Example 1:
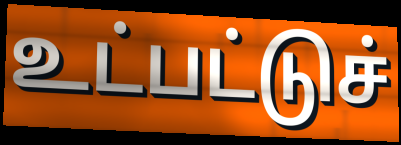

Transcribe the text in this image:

உட்பட்டுச்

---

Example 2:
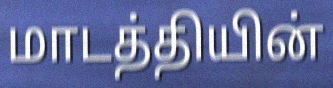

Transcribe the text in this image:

மாடத்தியின்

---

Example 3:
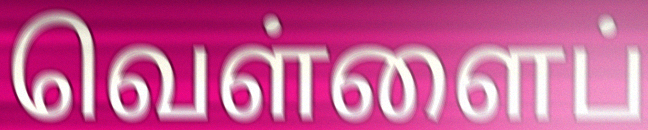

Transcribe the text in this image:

வெள்ளைப்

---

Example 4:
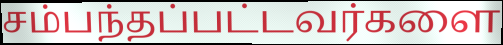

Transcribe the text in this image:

சம்பந்தப்பட்டவர்களை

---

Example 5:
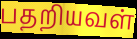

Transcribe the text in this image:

பதறியவள்